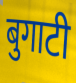
बुगाटी